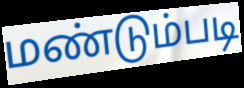
மண்டும்படி